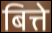
बित्ते